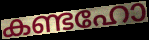
കണ്ടഹോ